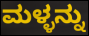
ಮಳ್ಳನ್ನು